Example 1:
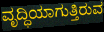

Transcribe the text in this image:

ವೃದ್ಧಿಯಾಗುತ್ತಿರುವ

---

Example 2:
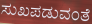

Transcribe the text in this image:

ಸುಖಪಡುವಂತೆ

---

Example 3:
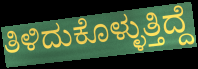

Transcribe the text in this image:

ತಿಳಿದುಕೊಳ್ಳುತ್ತಿದ್ದೆ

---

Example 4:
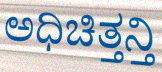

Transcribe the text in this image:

ಅಧಿಚಿತ್ತನ್ತಿ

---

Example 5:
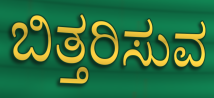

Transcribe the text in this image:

ಬಿತ್ತರಿಸುವ